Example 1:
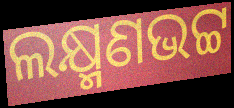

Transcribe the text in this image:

ଲକ୍ଷ୍ମଣଭଟ୍ଟ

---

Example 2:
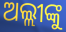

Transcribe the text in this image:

ଅଲ୍ଲୀଙ୍କୁ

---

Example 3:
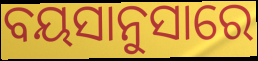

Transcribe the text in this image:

ବୟସାନୁସାରେ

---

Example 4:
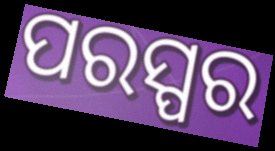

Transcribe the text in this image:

ପରସ୍ପର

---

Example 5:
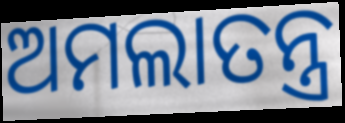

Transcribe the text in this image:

ଅମଲାତନ୍ତ୍ର